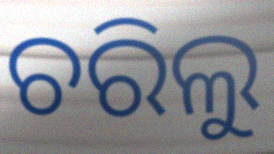
ଚରିଲୁ